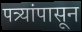
पत्र्यांपासून